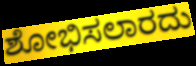
ಶೋಭಿಸಲಾರದು